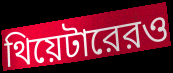
থিয়েটারেরও